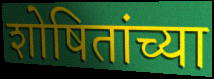
शोषितांच्या